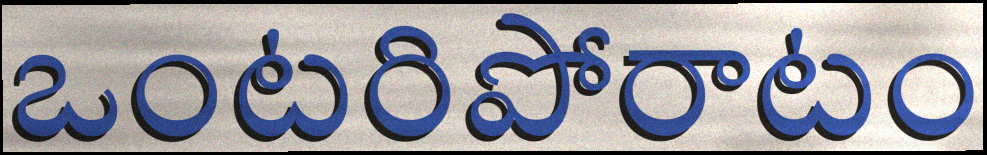
ఒంటరిపోరాటం